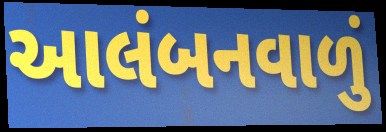
આલંબનવાળું